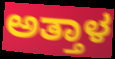
ಅತ್ತಾಳ